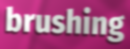
brushing